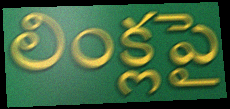
లింక్లపై